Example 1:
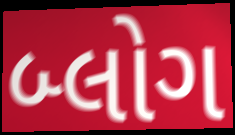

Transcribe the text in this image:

બ્લોગ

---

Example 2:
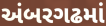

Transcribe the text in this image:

અંબરગઢમાં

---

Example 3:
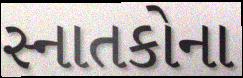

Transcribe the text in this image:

સ્નાતકોના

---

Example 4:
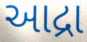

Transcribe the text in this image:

આદ્રા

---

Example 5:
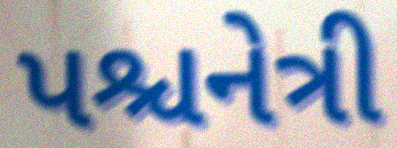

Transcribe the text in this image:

પશ્ચનેત્રી